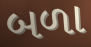
બળા